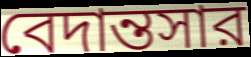
বেদান্তসার